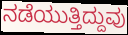
ನಡೆಯುತ್ತಿದ್ದುವು